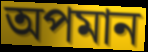
অপমান